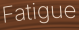
Fatigue